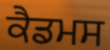
ਕੈਡਮਸ